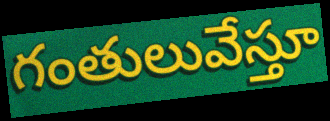
గంతులువేస్తూ